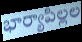
భార్యాపిల్లల